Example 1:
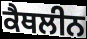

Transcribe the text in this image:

ਕੈਥਲੀਨ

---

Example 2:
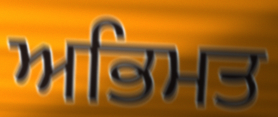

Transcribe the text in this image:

ਅਭਿਮਤ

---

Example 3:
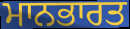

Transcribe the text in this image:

ਮਾਨਭਾਰਤ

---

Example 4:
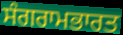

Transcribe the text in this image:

ਸੰਗਰਾਮਭਾਰਤ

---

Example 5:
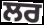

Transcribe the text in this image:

ਲਰ